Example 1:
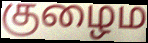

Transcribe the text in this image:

குழைம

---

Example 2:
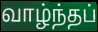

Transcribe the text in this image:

வாழ்ந்தப்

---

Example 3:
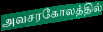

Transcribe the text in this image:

அவசரகோலத்தில்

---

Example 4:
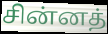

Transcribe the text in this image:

சின்னத்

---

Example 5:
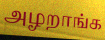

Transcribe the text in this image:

அழறாங்க